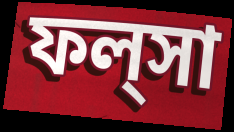
ফল্‌সা